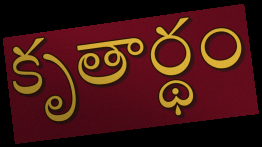
కృతార్థం